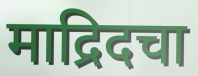
माद्रिदचा